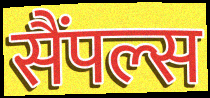
सैंपल्‍स